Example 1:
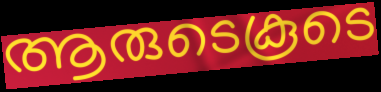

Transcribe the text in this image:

ആരുടെകൂടെ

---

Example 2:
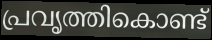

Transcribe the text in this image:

പ്രവൃത്തികൊണ്ട്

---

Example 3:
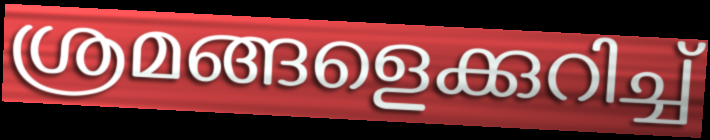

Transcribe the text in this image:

ശ്രമങ്ങളെക്കുറിച്ച്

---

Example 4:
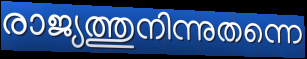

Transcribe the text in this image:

രാജ്യത്തുനിന്നുതന്നെ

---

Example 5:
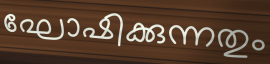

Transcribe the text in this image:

ഘോഷിക്കുന്നതും